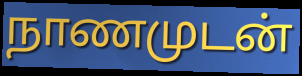
நாணமுடன்